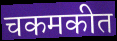
चकमकीत